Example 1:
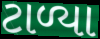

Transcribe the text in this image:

ટાળ્યા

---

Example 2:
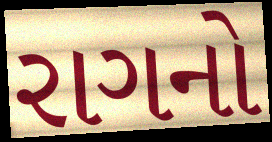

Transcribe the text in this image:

રાગનો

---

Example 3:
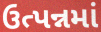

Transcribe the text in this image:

ઉત્પન્નમાં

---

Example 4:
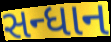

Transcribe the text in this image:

સન્ધાન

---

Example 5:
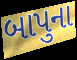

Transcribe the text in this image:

બાપુના